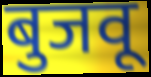
बुजवू